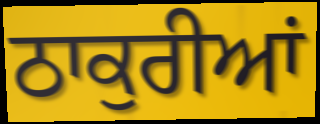
ਠਾਕੁਰੀਆਂ